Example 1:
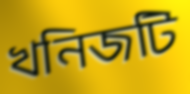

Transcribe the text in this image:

খনিজটি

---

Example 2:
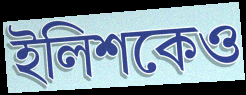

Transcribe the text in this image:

ইলিশকেও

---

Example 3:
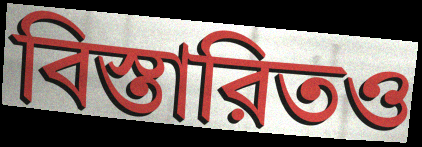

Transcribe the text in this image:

বিস্তারিতও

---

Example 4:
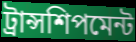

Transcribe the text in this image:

ট্রান্সশিপমেন্ট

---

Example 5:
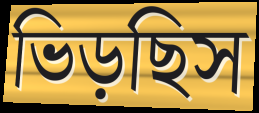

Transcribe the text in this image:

ভিড়ছিস